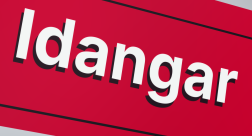
Idangar